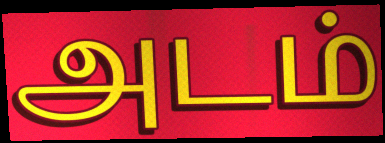
அடம்